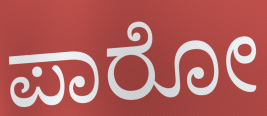
ಪಾರೋ